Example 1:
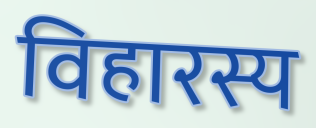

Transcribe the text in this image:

विहारस्य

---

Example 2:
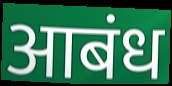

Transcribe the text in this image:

आबंध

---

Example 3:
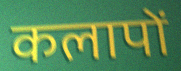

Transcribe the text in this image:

कलापों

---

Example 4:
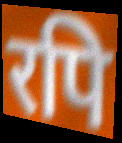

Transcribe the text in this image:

रपि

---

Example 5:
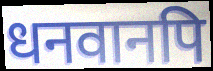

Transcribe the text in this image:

धनवानपि